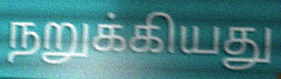
நறுக்கியது